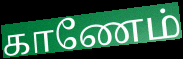
காணேம்